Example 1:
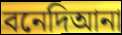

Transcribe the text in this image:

বনেদিআনা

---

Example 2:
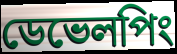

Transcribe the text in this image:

ডেভেলপিং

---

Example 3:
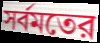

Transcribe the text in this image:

সর্বমতের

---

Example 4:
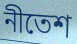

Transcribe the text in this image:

নীতেশ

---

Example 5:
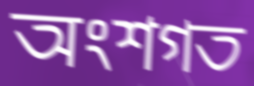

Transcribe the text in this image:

অংশগত